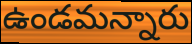
ఉండమన్నారు